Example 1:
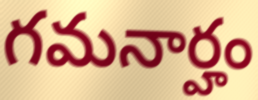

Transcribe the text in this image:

గమనార్హం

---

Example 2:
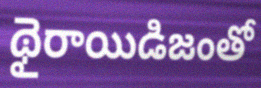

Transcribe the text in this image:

థైరాయిడిజంతో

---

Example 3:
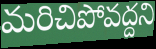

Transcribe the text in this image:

మరిచిపోవద్దని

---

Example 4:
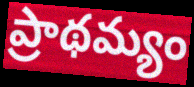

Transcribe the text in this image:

ప్రాథమ్యం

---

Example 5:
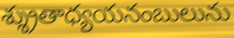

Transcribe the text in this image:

శ్శ్రుతాధ్యయనంబులును